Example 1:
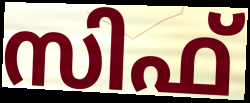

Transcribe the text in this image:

സിഫ്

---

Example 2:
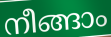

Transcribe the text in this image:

നീങ്ങാം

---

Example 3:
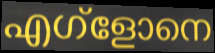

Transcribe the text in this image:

എഗ്ളോനെ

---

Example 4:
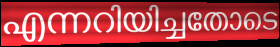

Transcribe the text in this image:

എന്നറിയിച്ചതോടെ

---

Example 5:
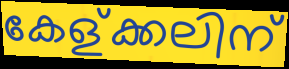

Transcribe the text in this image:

കേള്ക്കലിന്